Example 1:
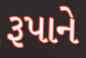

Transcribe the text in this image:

રૂપાને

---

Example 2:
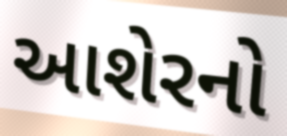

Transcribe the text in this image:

આશેરનો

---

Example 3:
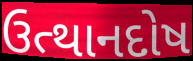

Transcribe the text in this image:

ઉત્થાનદોષ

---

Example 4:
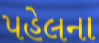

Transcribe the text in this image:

પહેલના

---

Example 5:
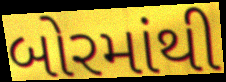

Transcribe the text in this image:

બોરમાંથી